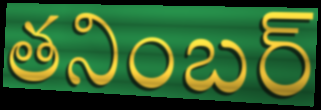
తనింబర్